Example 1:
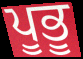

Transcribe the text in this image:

ਪੂਭੂ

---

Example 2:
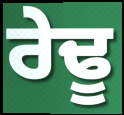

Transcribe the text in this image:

ਰੇਢੂ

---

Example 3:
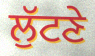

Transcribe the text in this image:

ਲੁੱਟਣੇ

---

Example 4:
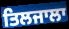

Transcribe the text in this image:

ਤਿਲਜਾਲਾ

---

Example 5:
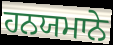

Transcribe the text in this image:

ਹਨਯਮਾਨੇ